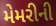
મેમરીની